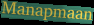
Manapmaan